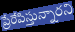
ప్రేరేపిస్తున్నారని